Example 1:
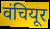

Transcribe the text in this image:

वंचियूर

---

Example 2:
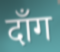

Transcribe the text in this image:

दाँग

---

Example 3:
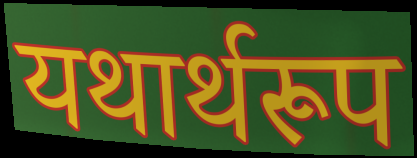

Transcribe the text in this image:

यथार्थरूप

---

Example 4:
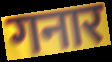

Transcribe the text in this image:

गनार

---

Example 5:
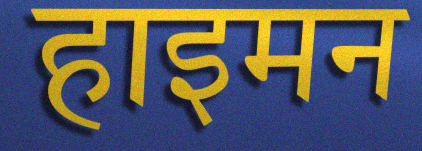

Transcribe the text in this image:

हाइमन